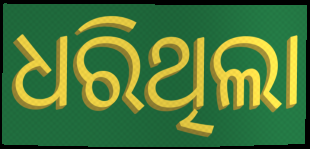
ଧରିଥିଲା